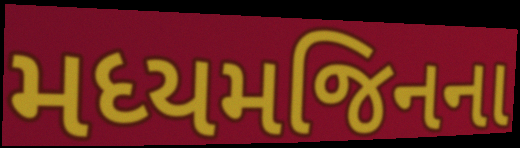
મધ્યમજિનના